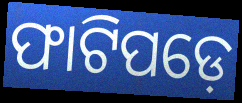
ଫାଟିପଡ଼େ